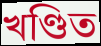
খণ্ডিত